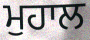
ਮੁਹਾਲ